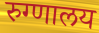
रुग्णालय